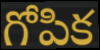
గోపిక